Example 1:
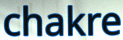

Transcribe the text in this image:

chakre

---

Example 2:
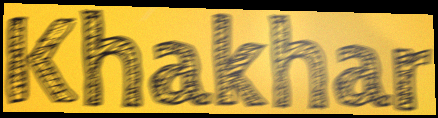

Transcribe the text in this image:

Khakhar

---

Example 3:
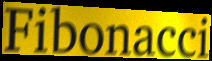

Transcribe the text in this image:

Fibonacci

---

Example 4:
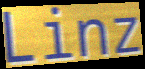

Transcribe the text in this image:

Linz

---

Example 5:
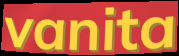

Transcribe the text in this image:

vanita